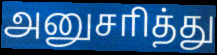
அனுசரித்து